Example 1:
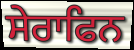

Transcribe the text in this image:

ਸੇਰਾਫਿਨ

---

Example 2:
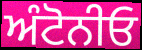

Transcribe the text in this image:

ਅੰਟੋਨੀਓ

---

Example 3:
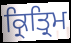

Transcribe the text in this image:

ਕ੍ਰਿਤ੍ਰਿਮ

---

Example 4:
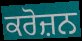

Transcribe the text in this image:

ਕਰੋਜ਼ਨ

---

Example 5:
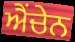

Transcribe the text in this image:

ਐਂਚੇਨ